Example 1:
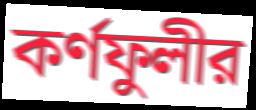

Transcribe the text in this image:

কর্ণফুলীর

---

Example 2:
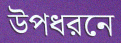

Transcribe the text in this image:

উপধরনে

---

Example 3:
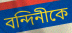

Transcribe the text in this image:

বন্দিনীকে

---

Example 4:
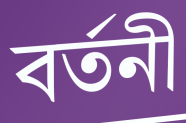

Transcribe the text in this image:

বর্তনী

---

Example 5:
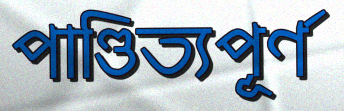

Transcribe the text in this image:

পাণ্ডিত্যপূর্ণ